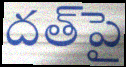
దత్‌పై